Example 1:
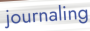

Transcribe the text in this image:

journaling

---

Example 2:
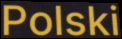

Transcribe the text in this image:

Polski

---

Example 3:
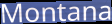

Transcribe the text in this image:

Montana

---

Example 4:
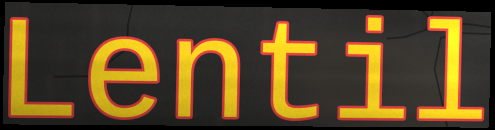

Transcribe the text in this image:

Lentil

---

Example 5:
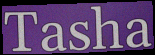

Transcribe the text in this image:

Tasha